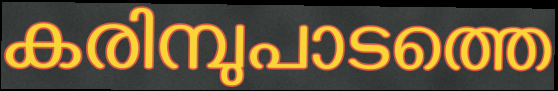
കരിമ്പുപാടത്തെ